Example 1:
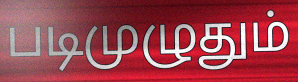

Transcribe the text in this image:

படிமுழுதும்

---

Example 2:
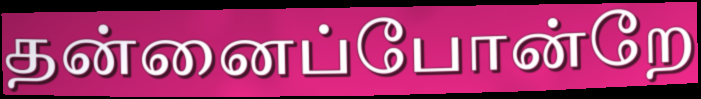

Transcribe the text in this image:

தன்னைப்போன்றே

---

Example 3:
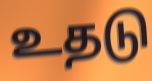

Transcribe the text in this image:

உதடு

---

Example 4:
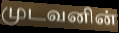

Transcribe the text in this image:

முடவனின்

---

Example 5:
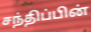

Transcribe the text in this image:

சந்திப்பின்